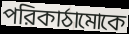
পরিকাঠামোকে